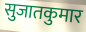
सुजातकुमार